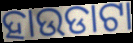
ହାଉଡାଟା